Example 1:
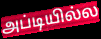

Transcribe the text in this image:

அப்டியில்ல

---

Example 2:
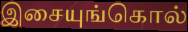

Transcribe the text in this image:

இசையுங்கொல்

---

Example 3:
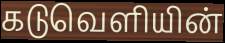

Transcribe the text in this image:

கடுவெளியின்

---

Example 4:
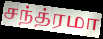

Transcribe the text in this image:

சந்த்ரமா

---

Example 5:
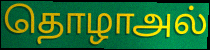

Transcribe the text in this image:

தொழாஅல்